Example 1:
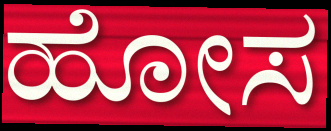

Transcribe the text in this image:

ಹೋಸ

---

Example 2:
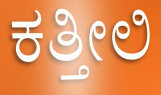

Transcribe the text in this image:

ಕತ್ತೀಲಿ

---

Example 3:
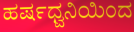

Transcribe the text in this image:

ಹರ್ಷಧ್ವನಿಯಿಂದ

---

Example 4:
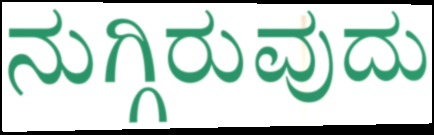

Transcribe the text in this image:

ನುಗ್ಗಿರುವುದು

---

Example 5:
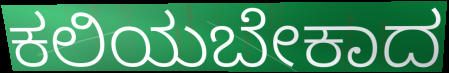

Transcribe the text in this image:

ಕಲಿಯಬೇಕಾದ